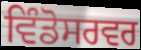
ਵਿੰਡੋਸਰਵਰ